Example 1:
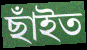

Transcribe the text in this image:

ছাঁইত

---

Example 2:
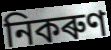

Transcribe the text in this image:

নিকৰুণ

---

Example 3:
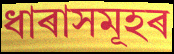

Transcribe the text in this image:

ধাৰাসমূহৰ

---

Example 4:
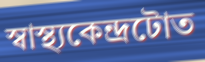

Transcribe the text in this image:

স্বাস্থ্যকেন্দ্ৰটোত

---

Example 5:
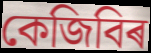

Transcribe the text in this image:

কেজিবিৰ